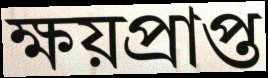
ক্ষয়প্রাপ্ত